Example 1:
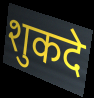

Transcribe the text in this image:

शुकदे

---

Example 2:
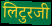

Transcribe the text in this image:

लिटुरजी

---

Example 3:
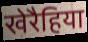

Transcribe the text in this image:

खेरैहिया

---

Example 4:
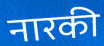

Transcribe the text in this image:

नारकी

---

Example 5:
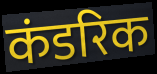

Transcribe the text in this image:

कंडरिक